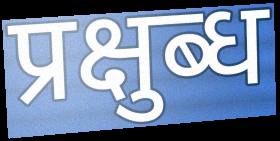
प्रक्षुब्ध